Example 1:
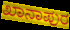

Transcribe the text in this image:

ಖಾನಾಪುರ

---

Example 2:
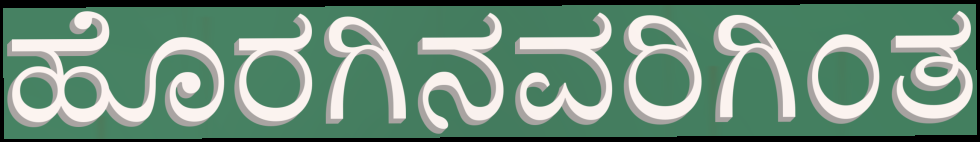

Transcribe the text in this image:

ಹೊರಗಿನವರಿಗಿಂತ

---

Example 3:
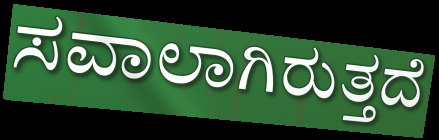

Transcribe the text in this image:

ಸವಾಲಾಗಿರುತ್ತದೆ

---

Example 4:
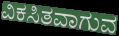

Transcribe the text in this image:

ವಿಕಸಿತವಾಗುವ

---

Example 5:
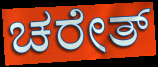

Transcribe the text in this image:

ಚರೇತ್